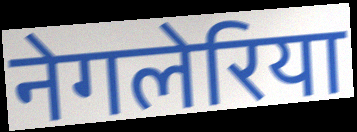
नेगलेरिया